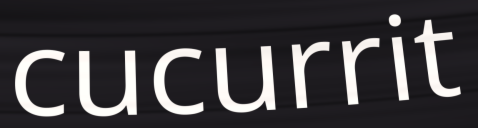
cucurrit